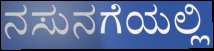
ನಸುನಗೆಯಲ್ಲಿ